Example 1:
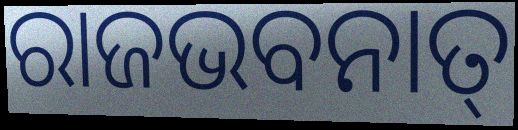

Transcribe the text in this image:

ରାଜଭବନାତ୍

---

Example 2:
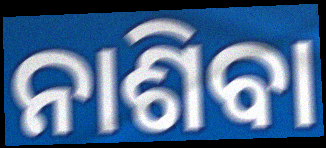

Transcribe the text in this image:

ନାଶିବା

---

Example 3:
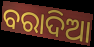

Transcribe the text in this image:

ବରାଦିଆ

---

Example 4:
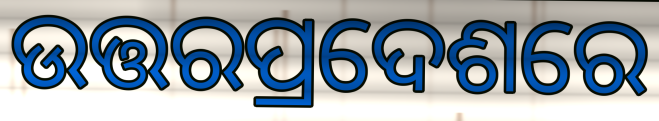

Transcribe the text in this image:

ଉତ୍ତରପ୍ରଦେଶରେ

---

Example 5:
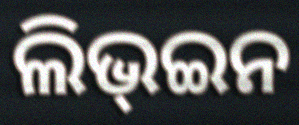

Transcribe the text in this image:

ଲିଭ୍ଇନ